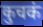
कुचकं